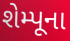
શેમ્પૂના